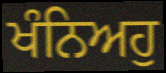
ਖੰਨਿਅਹੁ